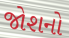
જોશનો